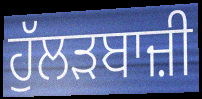
ਹੁੱਲੜਬਾਜ਼ੀ